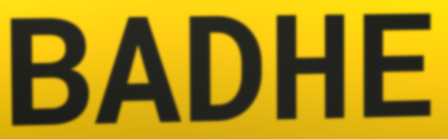
BADHE